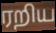
ரறிய